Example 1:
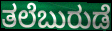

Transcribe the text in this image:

ತಲೆಬುರುಡೆ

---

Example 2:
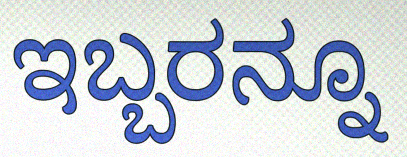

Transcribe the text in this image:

ಇಬ್ಬರನ್ನೂ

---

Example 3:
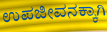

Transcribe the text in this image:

ಉಪಜೀವನಕ್ಕಾಗಿ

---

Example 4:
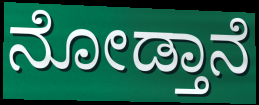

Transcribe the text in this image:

ನೋಡ್ತಾನೆ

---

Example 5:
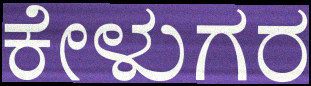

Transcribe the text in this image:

ಕೇಳುಗರ